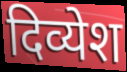
दिव्येश